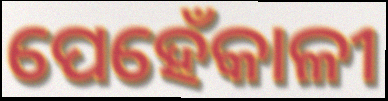
ପେହେଁକାଳୀ